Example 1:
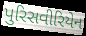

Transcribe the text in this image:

પુરિસવીરિયેન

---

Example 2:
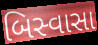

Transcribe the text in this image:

બિસ્વાસા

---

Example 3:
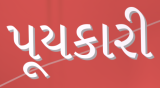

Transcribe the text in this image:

પૂયકારી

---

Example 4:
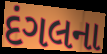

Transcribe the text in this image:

દંગલના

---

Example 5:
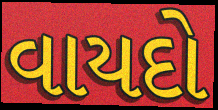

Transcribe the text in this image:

વાયદો